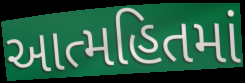
આત્મહિતમાં